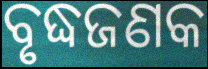
ବୃଦ୍ଧଜଣକ